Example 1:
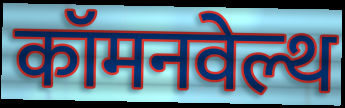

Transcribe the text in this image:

कॉमनवेल्थ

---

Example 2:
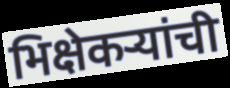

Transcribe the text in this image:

भिक्षेकऱ्यांची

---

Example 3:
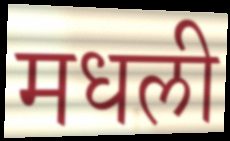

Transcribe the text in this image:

मधली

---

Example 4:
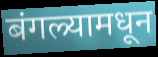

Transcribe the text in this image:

बंगल्यामधून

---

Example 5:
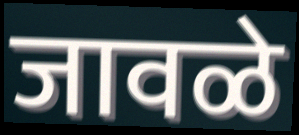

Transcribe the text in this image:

जावळे